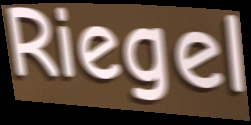
Riegel